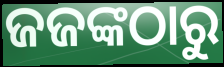
ଜଜଙ୍କଠାରୁ